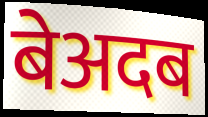
बेअदब